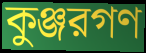
কুঞ্জরগণ